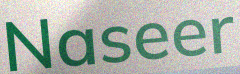
Naseer